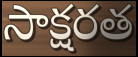
సాక్షరత